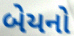
બેયનો